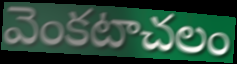
వెంకటాచలం